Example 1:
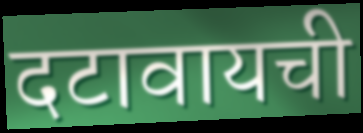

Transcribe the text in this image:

दटावायची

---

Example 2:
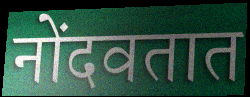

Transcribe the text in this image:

नोंदवतात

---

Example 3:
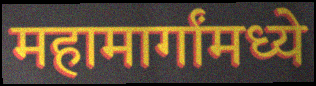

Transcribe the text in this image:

महामार्गांमध्ये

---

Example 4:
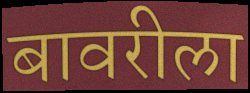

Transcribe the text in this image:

बावरीला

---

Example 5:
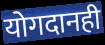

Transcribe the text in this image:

योगदानही